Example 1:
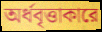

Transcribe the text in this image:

অর্ধবৃত্তাকারে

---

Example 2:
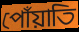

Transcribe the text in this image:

পোঁয়াতি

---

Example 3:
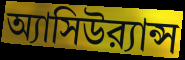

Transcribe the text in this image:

অ্যাসিউর‍্যান্স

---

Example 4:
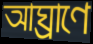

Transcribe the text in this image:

আঘ্রাণে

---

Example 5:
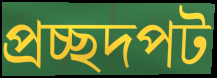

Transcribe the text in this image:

প্রচ্ছদপট